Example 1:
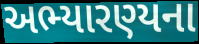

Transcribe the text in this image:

અભ્યારણ્યના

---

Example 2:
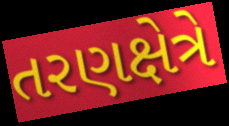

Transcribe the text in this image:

તરણક્ષેત્રે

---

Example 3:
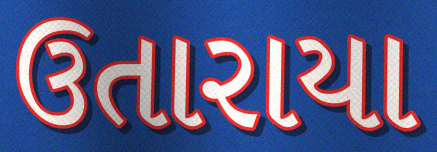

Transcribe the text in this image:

ઉતારાયા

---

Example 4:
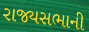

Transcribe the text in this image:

રાજ્યસભાની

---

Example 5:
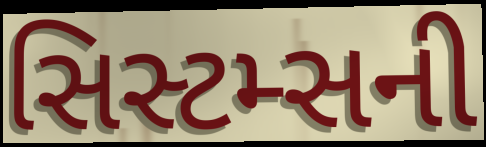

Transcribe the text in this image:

સિસ્ટમ્સની